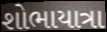
શોભાયાત્રા